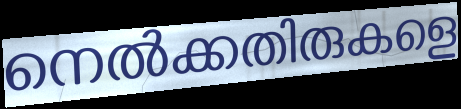
നെൽക്കതിരുകളെ